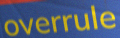
overrule